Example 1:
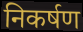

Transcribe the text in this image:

निकर्षण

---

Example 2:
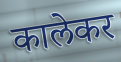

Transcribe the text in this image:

कालेकर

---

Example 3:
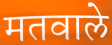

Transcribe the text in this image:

मतवाले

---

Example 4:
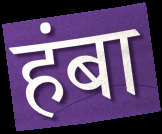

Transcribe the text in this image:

हंबा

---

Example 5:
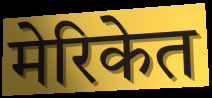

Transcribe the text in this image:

मेरिकेत